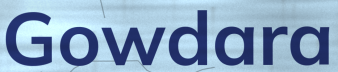
Gowdara